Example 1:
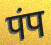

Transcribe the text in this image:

पंप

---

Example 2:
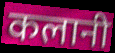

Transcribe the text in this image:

कलानी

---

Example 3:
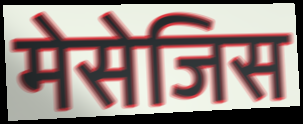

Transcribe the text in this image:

मेसेजिस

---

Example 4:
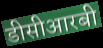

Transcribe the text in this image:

डीसीआरबी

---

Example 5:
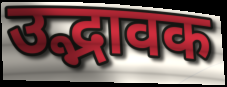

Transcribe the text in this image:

उद्भावक